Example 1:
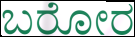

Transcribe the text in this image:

ಬರೋರ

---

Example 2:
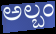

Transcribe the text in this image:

ಅಲ್ಬಂ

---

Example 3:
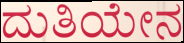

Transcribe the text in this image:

ದುತಿಯೇನ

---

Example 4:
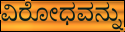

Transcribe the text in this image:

ವಿರೋಧವನ್ನು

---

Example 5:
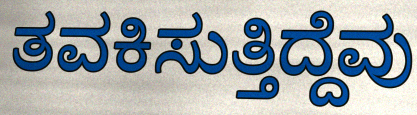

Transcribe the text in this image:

ತವಕಿಸುತ್ತಿದ್ದೆವು